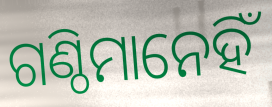
ଗଣ୍ଠିମାନେହିଁ